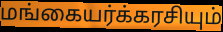
மங்கையர்க்கரசியும்